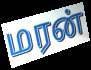
மரன்